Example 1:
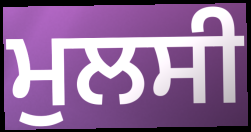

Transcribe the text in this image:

ਮੁਲਸੀ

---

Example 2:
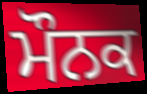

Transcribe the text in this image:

ਮੌਨਕ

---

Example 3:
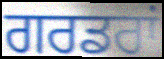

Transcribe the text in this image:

ਗਰਡਰਾਂ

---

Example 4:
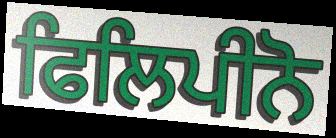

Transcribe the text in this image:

ਫਿਲਿਪੀਨੋ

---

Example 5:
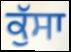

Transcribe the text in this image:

ਕੁੱਸਾ